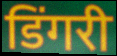
डिंगरी